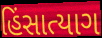
હિંસાત્યાગ